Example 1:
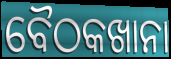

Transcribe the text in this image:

ବୈଠକଖାନା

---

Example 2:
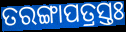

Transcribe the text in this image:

ତରଙ୍ଗାପତ୍ରସ୍ତଃ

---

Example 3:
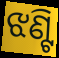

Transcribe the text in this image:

ଝଣ୍ଟି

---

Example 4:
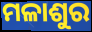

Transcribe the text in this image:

ମଳାଶୁର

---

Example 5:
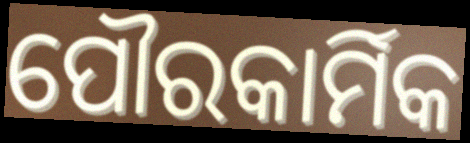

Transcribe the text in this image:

ପୌରକାର୍ମିକ